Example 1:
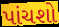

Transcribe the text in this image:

પાંચશો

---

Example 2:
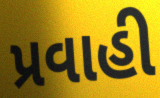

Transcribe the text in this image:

પ્રવાહી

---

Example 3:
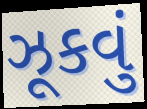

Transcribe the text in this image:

ઝૂકવું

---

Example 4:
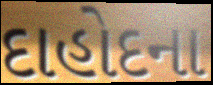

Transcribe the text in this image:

દાહોદના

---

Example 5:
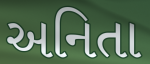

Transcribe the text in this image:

અનિતા